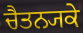
ਚੈਤਨ੍ਯਕੇ